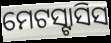
ମେଟସ୍ଟାସିସ